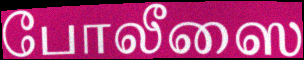
போலீஸை